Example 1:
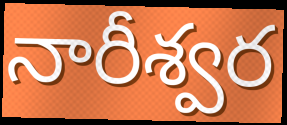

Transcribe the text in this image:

నారీశ్వర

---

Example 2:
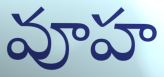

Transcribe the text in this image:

వూహ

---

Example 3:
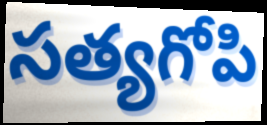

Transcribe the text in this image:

సత్యగోపి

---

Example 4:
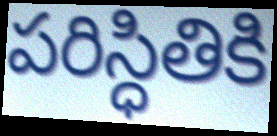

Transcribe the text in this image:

పరిస్ధితికి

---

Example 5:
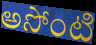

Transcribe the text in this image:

అసోంటి